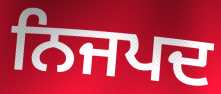
ਨਿਜਪਦ